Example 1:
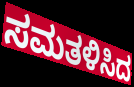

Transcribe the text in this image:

ಸಮತಳಿಸಿದ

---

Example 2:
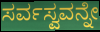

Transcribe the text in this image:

ಸರ್ವಸ್ವವನ್ನೇ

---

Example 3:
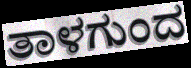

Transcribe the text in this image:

ತಾಳಗುಂದ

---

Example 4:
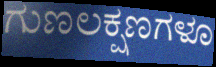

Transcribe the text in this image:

ಗುಣಲಕ್ಷಣಗಳೂ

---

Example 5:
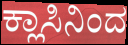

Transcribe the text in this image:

ಕ್ಲಾಸಿನಿಂದ